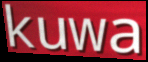
kuwa